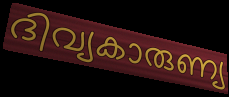
ദിവ്യകാരുണ്യ